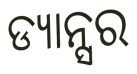
ଡ୍ୟାନ୍ସର